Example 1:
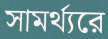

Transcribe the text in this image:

সামর্থ্যরে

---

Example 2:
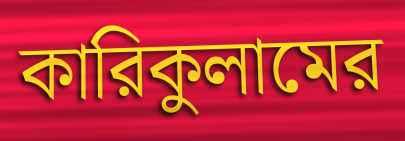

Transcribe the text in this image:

কারিকুলামের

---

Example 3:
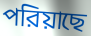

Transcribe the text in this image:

পরিয়াছে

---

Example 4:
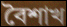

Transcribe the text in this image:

বৈশাখ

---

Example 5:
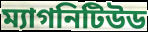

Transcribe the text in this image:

ম্যাগনিটিউড